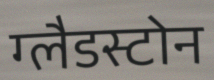
ग्लैडस्टोन